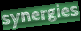
synergies